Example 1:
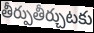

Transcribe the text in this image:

తీర్పుతీర్చుటకు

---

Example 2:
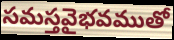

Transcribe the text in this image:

సమస్తవైభవముతో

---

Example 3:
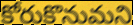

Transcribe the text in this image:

కోరుకొనుమని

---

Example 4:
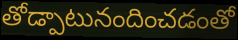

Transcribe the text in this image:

తోడ్పాటునందించడంతో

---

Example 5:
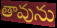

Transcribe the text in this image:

తావును